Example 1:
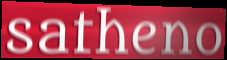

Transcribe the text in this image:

satheno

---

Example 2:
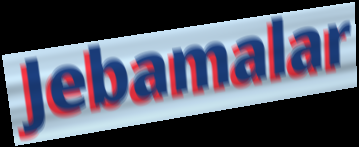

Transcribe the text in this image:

Jebamalar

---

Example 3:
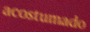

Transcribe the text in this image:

acostumado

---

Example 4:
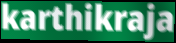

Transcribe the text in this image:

karthikraja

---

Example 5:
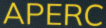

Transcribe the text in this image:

APERC